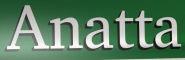
Anatta